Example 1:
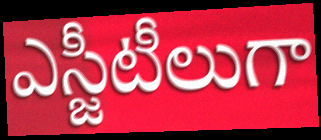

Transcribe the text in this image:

ఎస్జీటీలుగా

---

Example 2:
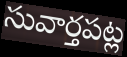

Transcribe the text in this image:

సువార్తపట్ల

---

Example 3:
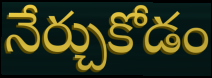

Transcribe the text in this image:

నేర్చుకోడం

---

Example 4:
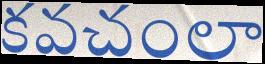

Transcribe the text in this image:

కవచంలా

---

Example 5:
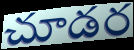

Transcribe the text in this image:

చూడర